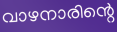
വാഴനാരിന്റെ